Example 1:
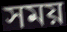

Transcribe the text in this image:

সময়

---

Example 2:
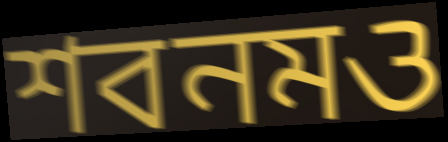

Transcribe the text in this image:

শবনমও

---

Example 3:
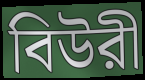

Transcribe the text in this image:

বিউরী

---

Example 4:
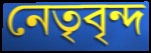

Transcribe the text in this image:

নেতৃবৃন্দ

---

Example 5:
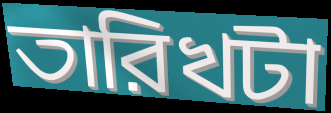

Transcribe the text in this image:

তারিখটা